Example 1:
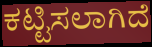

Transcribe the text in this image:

ಕಟ್ಟಿಸಲಾಗಿದೆ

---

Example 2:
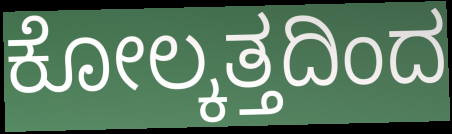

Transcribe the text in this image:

ಕೋಲ್ಕತ್ತದಿಂದ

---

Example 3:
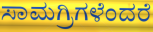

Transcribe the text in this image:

ಸಾಮಗ್ರಿಗಳೆಂದರೆ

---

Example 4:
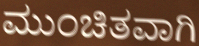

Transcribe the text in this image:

ಮುಂಚಿತವಾಗಿ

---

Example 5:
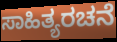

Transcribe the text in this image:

ಸಾಹಿತ್ಯರಚನೆ